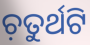
ଚ଼ତୁର୍ଥଟି